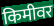
किमीवर